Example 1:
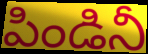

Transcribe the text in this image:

పిండినీ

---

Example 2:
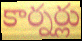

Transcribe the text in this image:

కార్నర్లు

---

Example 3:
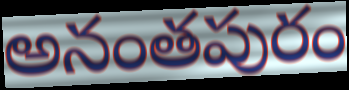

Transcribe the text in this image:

అనంతపురం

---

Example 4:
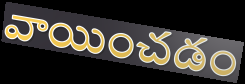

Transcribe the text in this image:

వాయించడం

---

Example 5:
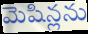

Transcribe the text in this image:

మెషిన్లను